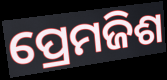
ପ୍ରେମଜିଶ